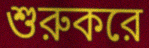
শুরুকরে